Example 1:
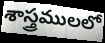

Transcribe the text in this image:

శాస్త్రములలో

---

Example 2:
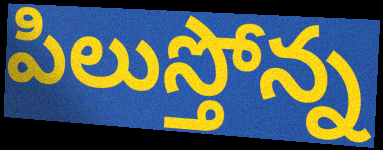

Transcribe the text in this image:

పిలుస్తోన్న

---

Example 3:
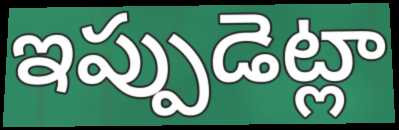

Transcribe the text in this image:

ఇప్పుడెట్లా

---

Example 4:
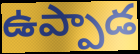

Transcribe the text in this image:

ఉప్పాడ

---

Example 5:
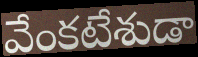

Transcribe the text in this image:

వేంకటేశుడా